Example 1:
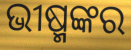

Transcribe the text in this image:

ଭୀଷ୍ମଙ୍କର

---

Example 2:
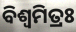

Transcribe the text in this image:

ବିଶ୍ବମିତ୍ରଃ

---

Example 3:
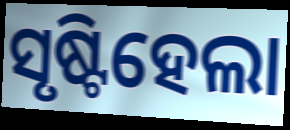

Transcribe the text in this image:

ସୃଷ୍ଟିହେଲା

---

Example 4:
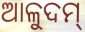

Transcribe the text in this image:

ଆଳୁଦମ୍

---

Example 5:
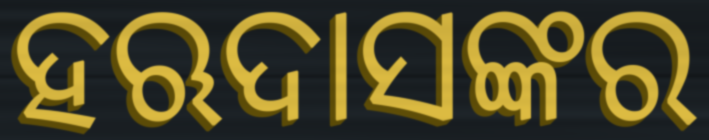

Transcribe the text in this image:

ହଋଦାସଙ୍କର